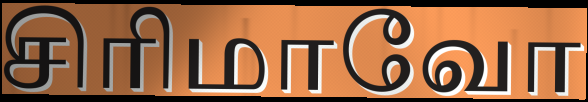
சிரிமாவோ